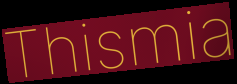
Thismia